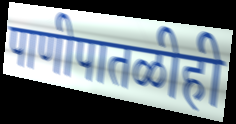
पाणीपातळीही